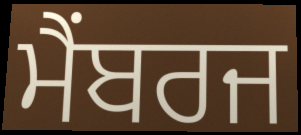
ਮੈਂਬਰਜ